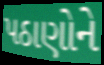
પઠાણોને